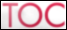
TOC